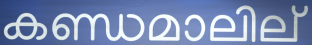
കണ്ഡമാലില്